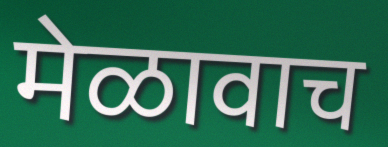
मेळावाच